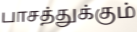
பாசத்துக்கும்